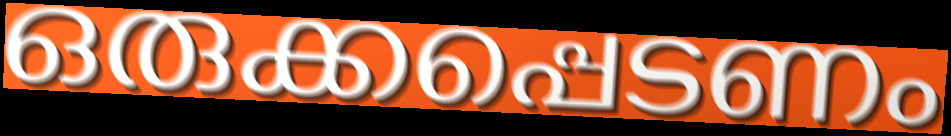
ഒരുക്കപ്പെടണം